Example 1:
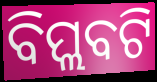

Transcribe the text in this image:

ବିପ୍ଲବଟି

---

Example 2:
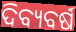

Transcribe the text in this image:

ଦିବ୍ୟବର୍ଷ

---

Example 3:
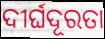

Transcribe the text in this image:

ଦୀର୍ଘଦୂରତା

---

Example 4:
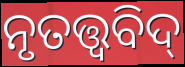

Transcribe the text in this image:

ନୃତତ୍ତ୍ଵବିଦ୍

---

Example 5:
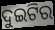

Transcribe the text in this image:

ଦୁଇଟିର